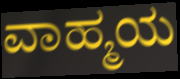
ವಾಹ್ಮಯ